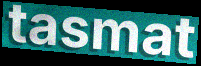
tasmat